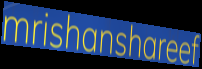
mrishanshareef